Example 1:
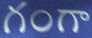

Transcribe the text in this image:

గంగా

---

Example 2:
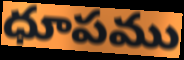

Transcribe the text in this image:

ధూపము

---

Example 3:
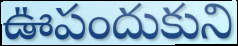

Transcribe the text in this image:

ఊపందుకుని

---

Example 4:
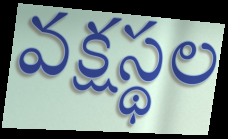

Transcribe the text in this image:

వక్షస్థల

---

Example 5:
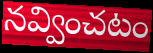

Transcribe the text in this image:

నవ్వించటం